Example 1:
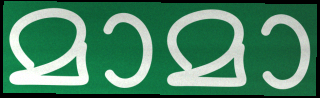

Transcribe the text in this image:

മാമാ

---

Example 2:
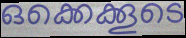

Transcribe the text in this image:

ഒക്കെക്കൂടെ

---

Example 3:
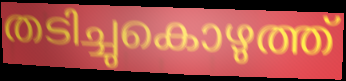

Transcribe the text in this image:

തടിച്ചുകൊഴുത്ത്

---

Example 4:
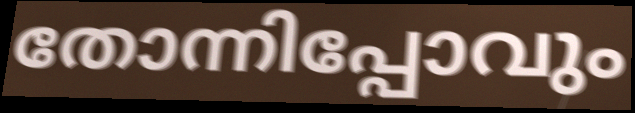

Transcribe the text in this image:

തോന്നിപ്പോവും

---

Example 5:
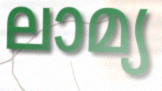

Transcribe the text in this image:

ലാമ്യ